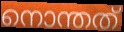
നൊന്തത്